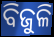
ବିଜୁଳି